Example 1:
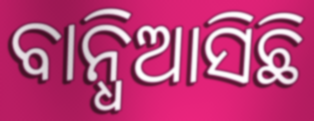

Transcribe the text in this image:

ବାନ୍ଧିଆସିଛି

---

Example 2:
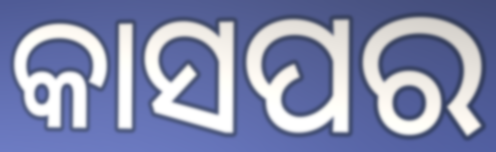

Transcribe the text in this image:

କାସପର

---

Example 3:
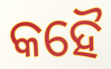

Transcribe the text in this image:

କହୈ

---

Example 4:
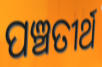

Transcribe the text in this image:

ପଞ୍ଚତୀର୍ଥ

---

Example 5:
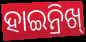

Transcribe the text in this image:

ହାଇନ୍ରିଖ୍